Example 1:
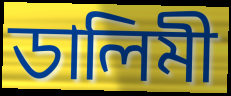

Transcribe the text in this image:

ডালিমী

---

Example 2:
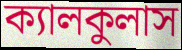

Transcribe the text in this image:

ক্যালকুলাস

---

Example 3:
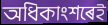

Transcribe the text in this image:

অধিকাংশৰেই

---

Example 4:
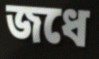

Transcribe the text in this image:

জধে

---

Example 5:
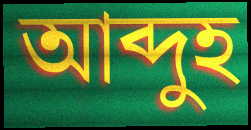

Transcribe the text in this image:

আব্দুহ